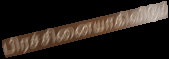
பிரச்சினையாகிவிடும்